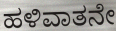
ಹಳಿವಾತನೇ